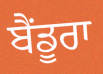
ਬੈਂਡੂਰਾ